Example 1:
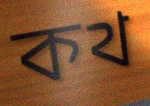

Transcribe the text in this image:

কথ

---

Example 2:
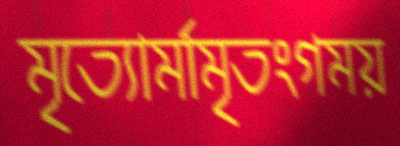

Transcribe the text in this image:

মৃত্যোর্মামৃতংগময়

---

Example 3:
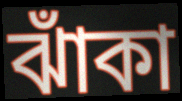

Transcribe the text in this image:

ঝাঁকা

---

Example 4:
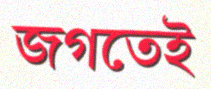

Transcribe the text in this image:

জগতেই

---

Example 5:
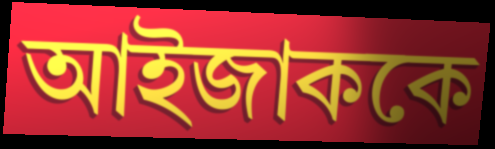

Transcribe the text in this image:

আইজাককে